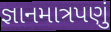
જ્ઞાનમાત્રપણું